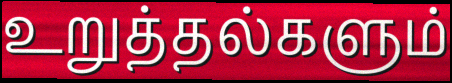
உறுத்தல்களும்